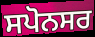
ਸਪੋਨਸਰ